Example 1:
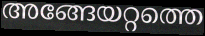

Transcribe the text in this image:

അങ്ങേയറ്റത്തെ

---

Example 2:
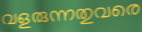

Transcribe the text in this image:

വളരുന്നതുവരെ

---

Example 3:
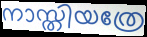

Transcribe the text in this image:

നാസ്തിയത്രേ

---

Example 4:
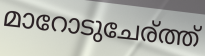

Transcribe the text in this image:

മാറോടുചേര്ത്ത്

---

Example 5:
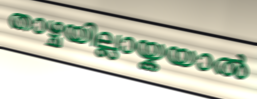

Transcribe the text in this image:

താഴ്ചയില്ലായ്കയാൽ